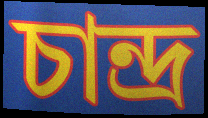
চান্দ্র